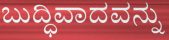
ಬುದ್ಧಿವಾದವನ್ನು